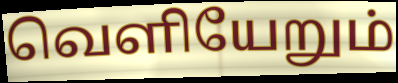
வெளியேறும்